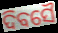
ଦିବସୈ